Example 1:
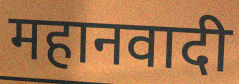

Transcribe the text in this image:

महानवादी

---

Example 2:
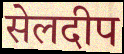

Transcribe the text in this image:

सेलदीप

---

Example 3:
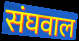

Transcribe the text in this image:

संघवाल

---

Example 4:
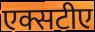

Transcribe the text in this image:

एक्सटीए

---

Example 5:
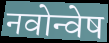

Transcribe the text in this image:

नवोन्वेष